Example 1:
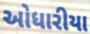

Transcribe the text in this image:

ઓધારીયા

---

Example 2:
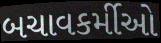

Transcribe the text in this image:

બચાવકર્મીઓ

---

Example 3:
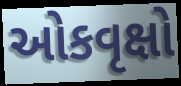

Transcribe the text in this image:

ઓકવૃક્ષો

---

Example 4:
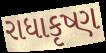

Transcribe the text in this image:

રાધાકૃષ્ણ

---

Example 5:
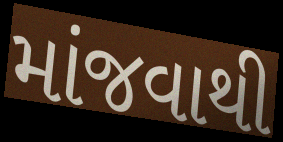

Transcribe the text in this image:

માંજવાથી